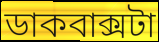
ডাকবাক্সটা